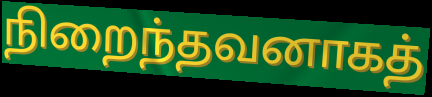
நிறைந்தவனாகத்